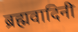
ब्रह्मवादिनी